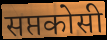
सप्तकोसी